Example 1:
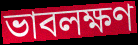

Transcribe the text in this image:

ভাবলক্ষণ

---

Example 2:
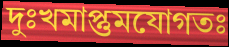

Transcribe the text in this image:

দুঃখমাপ্তুমযোগতঃ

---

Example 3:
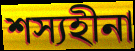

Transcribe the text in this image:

শস্যহীনা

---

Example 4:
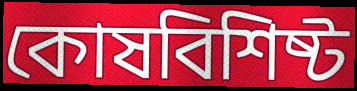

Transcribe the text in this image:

কোষবিশিষ্ট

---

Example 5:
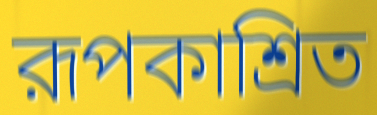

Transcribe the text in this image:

রূপকাশ্রিত